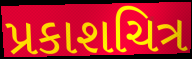
પ્રકાશચિત્ર